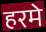
हरमे